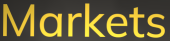
Markets